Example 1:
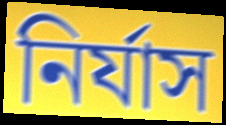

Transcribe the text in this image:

নির্যাস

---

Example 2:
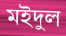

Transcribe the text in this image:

মইদুল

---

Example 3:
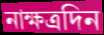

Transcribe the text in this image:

নাক্ষত্রদিন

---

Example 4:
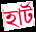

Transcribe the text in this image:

হার্ট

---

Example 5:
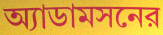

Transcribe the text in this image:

অ্যাডামসনের